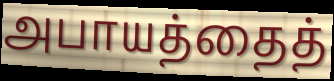
அபாயத்தைத்